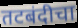
तटबंदीचा